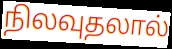
நிலவுதலால்